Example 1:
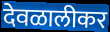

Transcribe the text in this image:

देवळालीकर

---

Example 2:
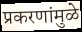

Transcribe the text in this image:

प्रकरणांमुळे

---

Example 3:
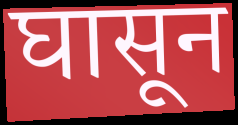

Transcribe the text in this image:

घासून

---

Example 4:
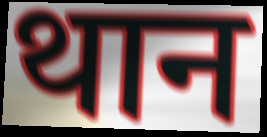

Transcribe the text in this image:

थान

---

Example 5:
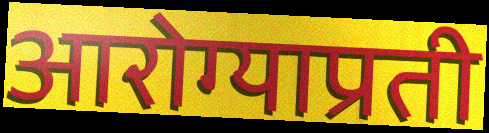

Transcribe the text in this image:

आरोग्याप्रती